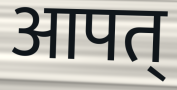
आपत्